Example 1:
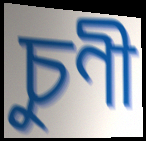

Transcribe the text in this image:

চুণী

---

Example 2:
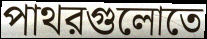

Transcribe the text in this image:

পাথরগুলোতে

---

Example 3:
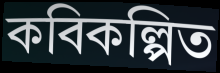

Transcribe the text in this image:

কবিকল্পিত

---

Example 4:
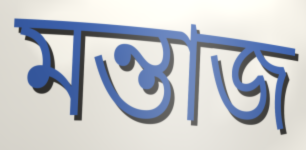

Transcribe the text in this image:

মন্তাজ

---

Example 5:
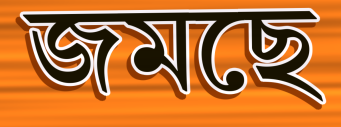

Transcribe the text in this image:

জমছে